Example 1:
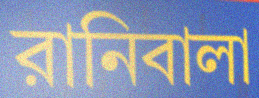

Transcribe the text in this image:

রানিবালা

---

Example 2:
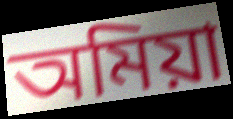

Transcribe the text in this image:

অমিয়া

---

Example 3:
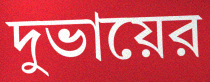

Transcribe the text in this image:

দুভায়ের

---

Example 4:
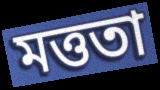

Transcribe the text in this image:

মত্ততা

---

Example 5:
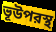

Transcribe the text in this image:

ভূউপরস্থ